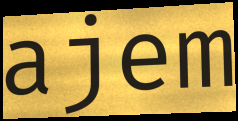
ajem